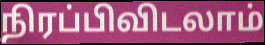
நிரப்பிவிடலாம்